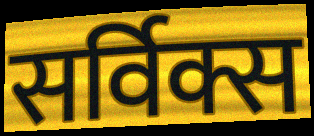
सर्विक्स